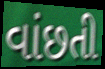
વાંછતી